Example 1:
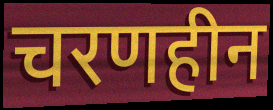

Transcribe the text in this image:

चरणहीन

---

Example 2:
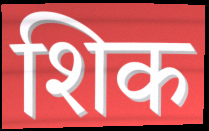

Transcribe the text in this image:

शिक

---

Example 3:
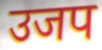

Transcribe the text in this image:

उजप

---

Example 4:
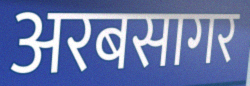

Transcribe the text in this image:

अरबसागर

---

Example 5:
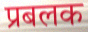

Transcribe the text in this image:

प्रबलक